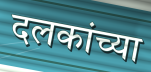
दलकांच्या